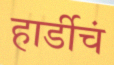
हार्डीचं